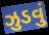
ઝુડવું